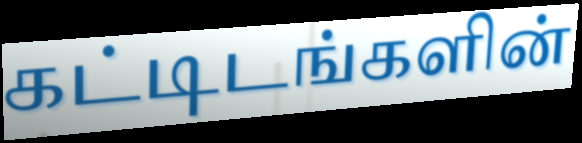
கட்டிடங்களின்